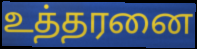
உத்தரனை